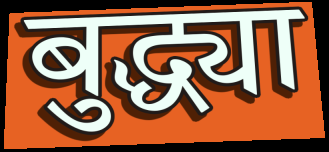
बुद्ध्या